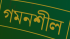
গমনশীল